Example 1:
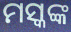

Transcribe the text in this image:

ମସ୍କଙ୍କ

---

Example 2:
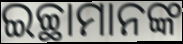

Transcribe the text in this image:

ଇଚ୍ଛାମାନଙ୍କ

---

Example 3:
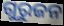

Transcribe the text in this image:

ଗୁରୁଜନ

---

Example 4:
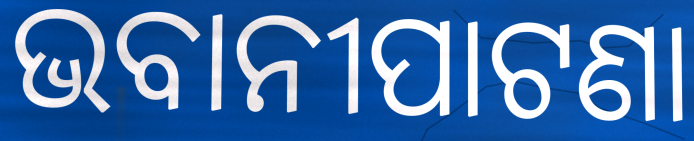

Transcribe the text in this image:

ଭବାନୀପାଟଣା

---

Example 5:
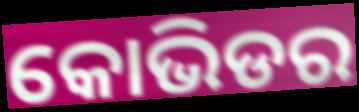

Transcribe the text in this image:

କୋଭିଡର